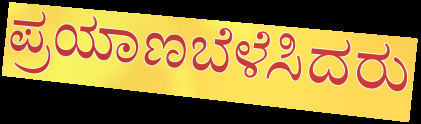
ಪ್ರಯಾಣಬೆಳೆಸಿದರು